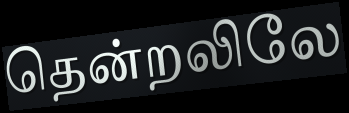
தென்றலிலே